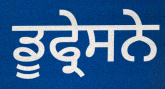
ਡੂਫ੍ਰੇਸਨੇ